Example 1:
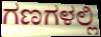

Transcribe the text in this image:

ಗಣಗಳಲ್ಲಿ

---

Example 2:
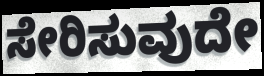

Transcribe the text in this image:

ಸೇರಿಸುವುದೇ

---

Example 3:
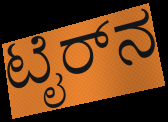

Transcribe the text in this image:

ಟೈರ್‌ನ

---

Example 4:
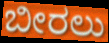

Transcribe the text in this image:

ಬೀರಲು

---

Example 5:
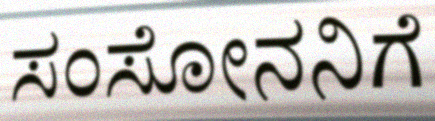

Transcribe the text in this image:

ಸಂಸೋನನಿಗೆ